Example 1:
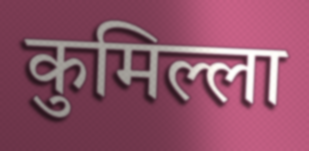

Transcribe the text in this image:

कुमिल्ला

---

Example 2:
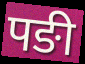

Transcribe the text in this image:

पङी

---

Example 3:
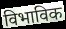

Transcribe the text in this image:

विभाविक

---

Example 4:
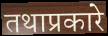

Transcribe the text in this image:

तथाप्रकारे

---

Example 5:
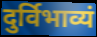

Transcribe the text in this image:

दुर्विभाव्यं